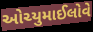
ઓચ્યુમાઈલોવે